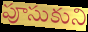
పూసుకుని